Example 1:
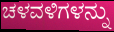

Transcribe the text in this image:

ಚಳವಳಿಗಳನ್ನು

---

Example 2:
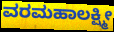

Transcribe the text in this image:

ವರಮಹಾಲಕ್ಷ್ಮೀ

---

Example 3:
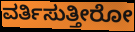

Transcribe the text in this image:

ವರ್ತಿಸುತ್ತೀರೋ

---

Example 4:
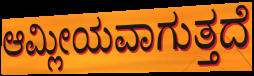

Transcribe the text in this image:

ಆಮ್ಲೀಯವಾಗುತ್ತದೆ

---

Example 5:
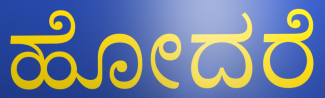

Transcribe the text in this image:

ಹೋದರೆ